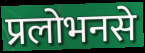
प्रलोभनसे